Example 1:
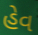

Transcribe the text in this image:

હેવ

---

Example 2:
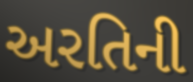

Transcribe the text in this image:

અરતિની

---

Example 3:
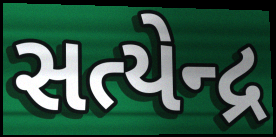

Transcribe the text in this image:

સત્યેન્દ્ર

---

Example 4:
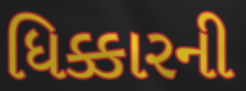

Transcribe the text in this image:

ધિક્કારની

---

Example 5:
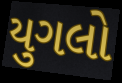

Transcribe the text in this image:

યુગલો